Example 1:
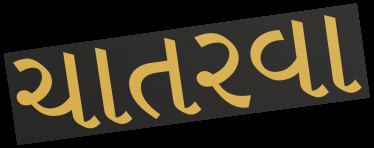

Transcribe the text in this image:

ચાતરવા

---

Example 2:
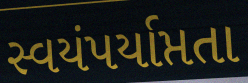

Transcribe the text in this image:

સ્વયંપર્યાપ્તતા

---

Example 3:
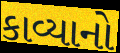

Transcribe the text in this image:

કાવ્યાનો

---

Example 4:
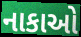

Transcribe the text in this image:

નાકાઓ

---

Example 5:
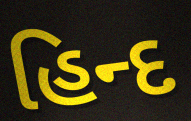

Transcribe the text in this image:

હિન્દ